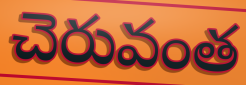
చెరువంత